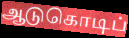
ஆடுகொடிப்